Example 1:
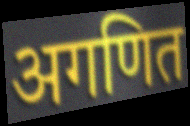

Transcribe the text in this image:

अगणित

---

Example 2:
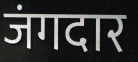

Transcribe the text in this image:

जंगदार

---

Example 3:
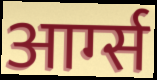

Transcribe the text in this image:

आर्ग्स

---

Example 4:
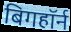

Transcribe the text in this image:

बिगहॉर्न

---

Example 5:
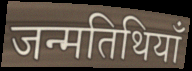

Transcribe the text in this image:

जन्मतिथियाँ